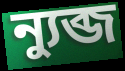
ন্যুব্জ